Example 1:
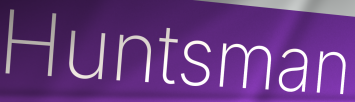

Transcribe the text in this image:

Huntsman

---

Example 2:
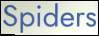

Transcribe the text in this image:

Spiders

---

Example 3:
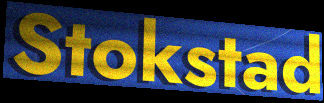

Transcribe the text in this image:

Stokstad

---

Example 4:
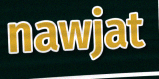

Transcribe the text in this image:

nawjat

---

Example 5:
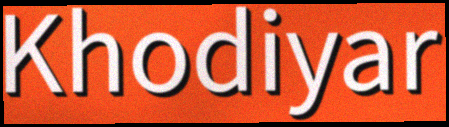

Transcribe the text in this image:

Khodiyar